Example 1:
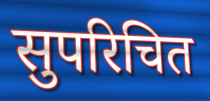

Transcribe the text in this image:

सुपरिचित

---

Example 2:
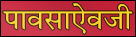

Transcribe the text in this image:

पावसाऐवजी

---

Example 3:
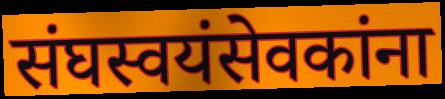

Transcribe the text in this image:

संघस्वयंसेवकांना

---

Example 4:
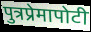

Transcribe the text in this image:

पुत्रप्रेमापोटी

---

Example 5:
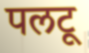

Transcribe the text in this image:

पलटू